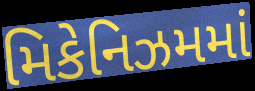
મિકેનિઝમમાં